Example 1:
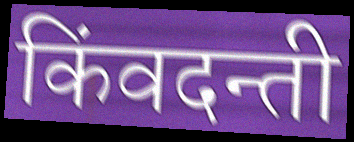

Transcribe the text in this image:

किंवदन्ती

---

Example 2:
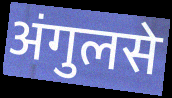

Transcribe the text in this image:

अंगुलसे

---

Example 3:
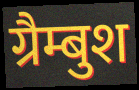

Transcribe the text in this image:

ग्रैम्बुश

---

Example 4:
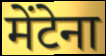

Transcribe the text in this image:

मेंटेना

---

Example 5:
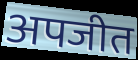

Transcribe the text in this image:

अपजीत